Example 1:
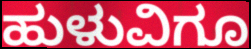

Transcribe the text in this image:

ಹುಳುವಿಗೂ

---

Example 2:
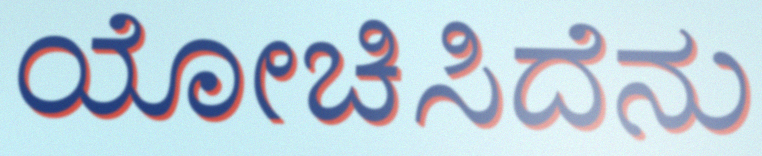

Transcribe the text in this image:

ಯೋಚಿಸಿದೆನು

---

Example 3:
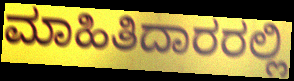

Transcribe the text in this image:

ಮಾಹಿತಿದಾರರಲ್ಲಿ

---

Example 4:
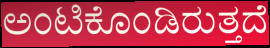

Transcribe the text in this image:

ಅಂಟಿಕೊಂಡಿರುತ್ತದೆ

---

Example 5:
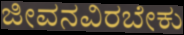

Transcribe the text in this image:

ಜೀವನವಿರಬೇಕು